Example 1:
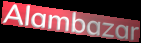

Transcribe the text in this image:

Alambazar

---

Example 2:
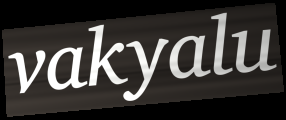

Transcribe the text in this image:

vakyalu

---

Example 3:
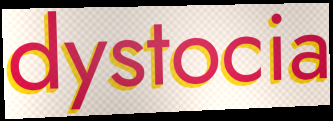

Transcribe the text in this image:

dystocia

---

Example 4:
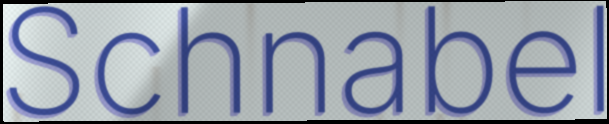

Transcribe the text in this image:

Schnabel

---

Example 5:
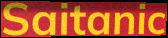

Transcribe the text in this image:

Saitanic